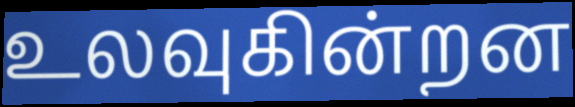
உலவுகின்றன